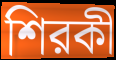
শিরকী